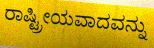
ರಾಷ್ಟ್ರೀಯವಾದವನ್ನು